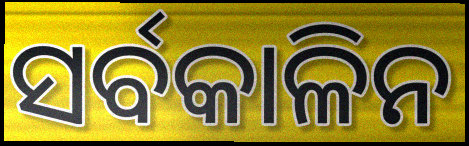
ସର୍ବକାଳିନ